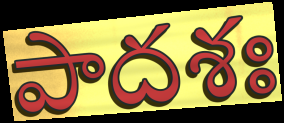
పాదశః